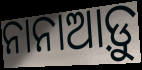
ନାନାଆଡ଼ୁ